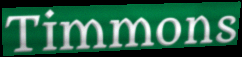
Timmons